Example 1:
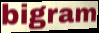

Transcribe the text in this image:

bigram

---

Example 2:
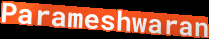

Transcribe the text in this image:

Parameshwaran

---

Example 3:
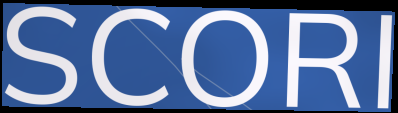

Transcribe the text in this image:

SCORI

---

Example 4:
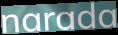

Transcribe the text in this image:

narada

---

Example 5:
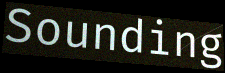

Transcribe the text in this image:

Sounding